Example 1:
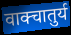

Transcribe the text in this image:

वाक्चातुर्य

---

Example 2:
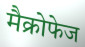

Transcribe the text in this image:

मैक्रोफेज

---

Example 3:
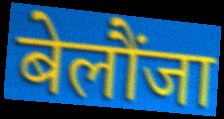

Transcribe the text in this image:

बेलौंजा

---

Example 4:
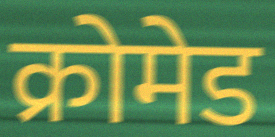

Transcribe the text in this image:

क्रोमेड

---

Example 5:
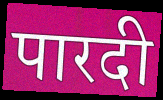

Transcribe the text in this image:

पारदी